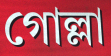
গোল্লা